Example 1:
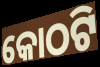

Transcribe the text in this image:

କୋଠଟି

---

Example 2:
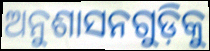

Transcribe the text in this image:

ଅନୁଶାସନଗୁଡ଼ିକୁ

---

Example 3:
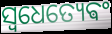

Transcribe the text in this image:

ସ୍ଵଧେତ୍ଯେଵଂ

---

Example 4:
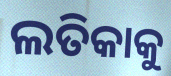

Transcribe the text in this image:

ଲତିକାକୁ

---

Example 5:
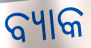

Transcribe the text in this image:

ବ୍ୟାକ